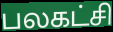
பலகட்சி